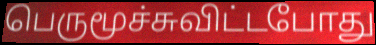
பெருமூச்சுவிட்டபோது